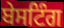
ਬੇਸਟਿੰਗ